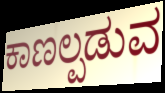
ಕಾಣಲ್ಪಡುವ